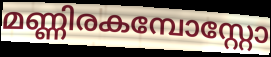
മണ്ണിരകമ്പോസ്റ്റോ